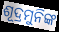
ଶୂଦ୍ରମୁନିଙ୍କ